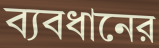
ব্যবধানের